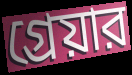
গ্রেয়ার